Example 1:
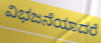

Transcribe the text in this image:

ವಿಭಜನೆಯಾದರೆ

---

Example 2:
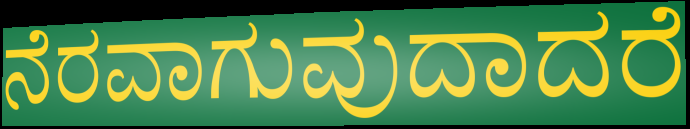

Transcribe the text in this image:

ನೆರವಾಗುವುದಾದರೆ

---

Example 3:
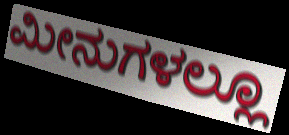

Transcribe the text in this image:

ಮೀನುಗಳಲ್ಲೂ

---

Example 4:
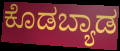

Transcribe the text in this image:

ಕೊಡಬ್ಯಾಡ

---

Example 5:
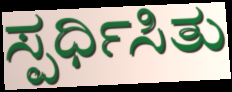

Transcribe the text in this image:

ಸ್ಪರ್ಧಿಸಿತು